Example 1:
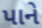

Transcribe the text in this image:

પાને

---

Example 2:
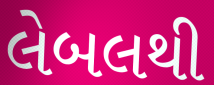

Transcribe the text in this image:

લેબલથી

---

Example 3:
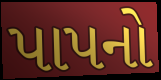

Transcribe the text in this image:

પાપનો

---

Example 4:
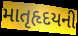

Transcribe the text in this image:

માતૃહૃદયની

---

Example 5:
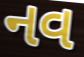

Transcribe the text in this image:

નવ